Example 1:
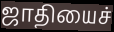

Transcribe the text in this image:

ஜாதியைச்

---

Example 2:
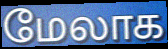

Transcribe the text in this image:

மேலாக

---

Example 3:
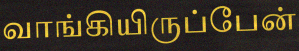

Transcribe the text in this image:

வாங்கியிருப்பேன்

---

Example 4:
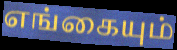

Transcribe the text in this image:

எங்கையும்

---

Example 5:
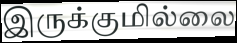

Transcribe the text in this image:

இருக்குமில்லை